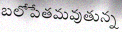
బలోపేతమవుతున్న